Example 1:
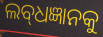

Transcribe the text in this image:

ଲବ୍‌ଧଜ୍ଞାନକୁ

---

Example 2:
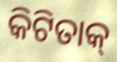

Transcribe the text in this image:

କିଟିତାକ୍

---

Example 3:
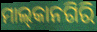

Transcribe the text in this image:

ମାଲ୍‌କାନଗିରି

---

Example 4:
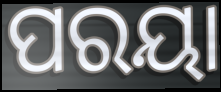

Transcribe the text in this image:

ପରୟା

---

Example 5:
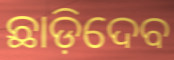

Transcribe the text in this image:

ଛାଡ଼ିଦେବ